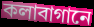
কলাবাগানে